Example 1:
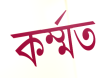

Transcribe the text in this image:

কৰ্ম্মত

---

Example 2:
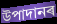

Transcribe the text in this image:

উপাদানৰ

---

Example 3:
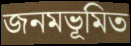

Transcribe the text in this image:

জনমভূমিত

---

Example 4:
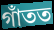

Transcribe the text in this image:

গাঁতত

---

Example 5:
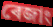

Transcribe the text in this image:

ৰেজাং